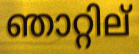
ഞാറ്റില്